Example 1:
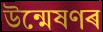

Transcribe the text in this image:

উন্মেষণৰ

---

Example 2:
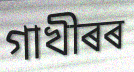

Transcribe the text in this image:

গাখীৰৰ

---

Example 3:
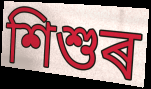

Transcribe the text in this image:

শিশুৰ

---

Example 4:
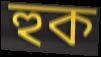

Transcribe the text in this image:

হুক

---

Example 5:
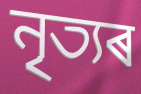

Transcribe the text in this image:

নৃত্যৰ